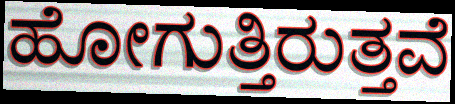
ಹೋಗುತ್ತಿರುತ್ತವೆ